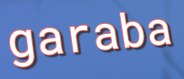
garaba